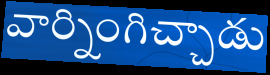
వార్నింగిచ్చాడు